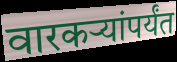
वारकऱ्यांपर्यंत